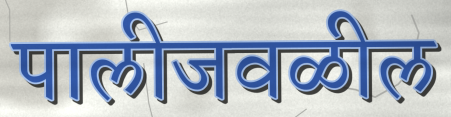
पालीजवळील